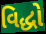
વિદ્ધો